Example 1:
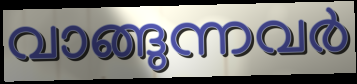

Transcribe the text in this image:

വാങ്ങുന്നവർ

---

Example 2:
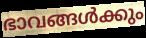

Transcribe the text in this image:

ഭാവങ്ങൾക്കും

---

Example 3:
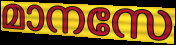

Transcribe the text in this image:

മാനസേ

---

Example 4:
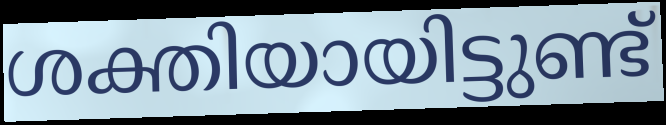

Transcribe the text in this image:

ശക്തിയായിട്ടുണ്ട്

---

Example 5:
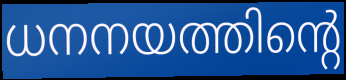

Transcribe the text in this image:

ധനനയത്തിന്റെ